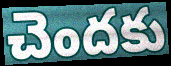
చెందకు